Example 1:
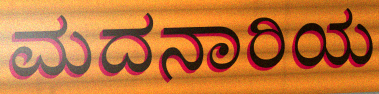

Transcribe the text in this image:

ಮದನಾರಿಯ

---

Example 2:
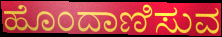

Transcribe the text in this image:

ಹೊಂದಾಣಿಸುವ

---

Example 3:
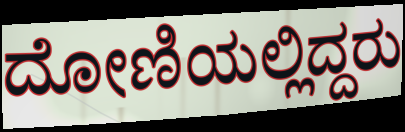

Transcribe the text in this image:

ದೋಣಿಯಲ್ಲಿದ್ದರು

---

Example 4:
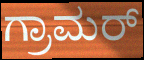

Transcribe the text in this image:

ಗ್ರಾಮರ್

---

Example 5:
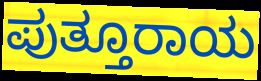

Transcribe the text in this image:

ಪುತ್ತೂರಾಯ